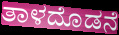
ತಾಳದೊಡನೆ